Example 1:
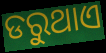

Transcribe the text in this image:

ଡରୁଥାଏ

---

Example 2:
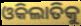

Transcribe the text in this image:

ଓକିଲାତିକୁ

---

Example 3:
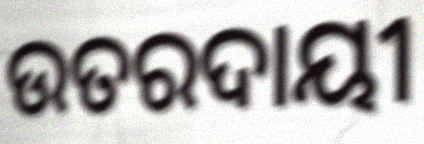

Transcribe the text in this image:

ଉତରଦାୟୀ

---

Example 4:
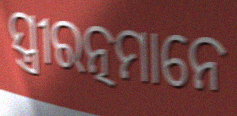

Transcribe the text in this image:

ସ୍ତ୍ରୀରତ୍ନମାନେ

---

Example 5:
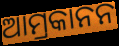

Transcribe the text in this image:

ଆମ୍ରକାନନ